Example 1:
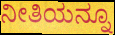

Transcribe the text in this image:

ನೀತಿಯನ್ನೂ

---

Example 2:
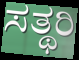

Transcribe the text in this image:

ಸತ್ಥರಿ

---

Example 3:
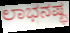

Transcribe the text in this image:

ಲಾಭನಷ್ಟ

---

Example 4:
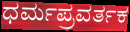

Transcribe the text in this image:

ಧರ್ಮಪ್ರವರ್ತಕ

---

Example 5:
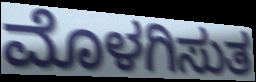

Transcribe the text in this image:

ಮೊಳಗಿಸುತ